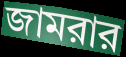
জামরার